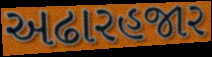
અઢારહજાર